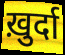
ख़ुर्दा